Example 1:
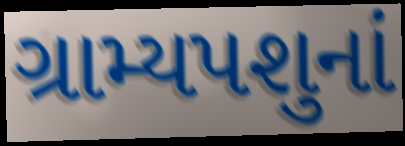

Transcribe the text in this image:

ગ્રામ્યપશુનાં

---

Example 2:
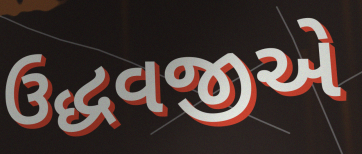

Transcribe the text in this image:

ઉદ્ધવજીએ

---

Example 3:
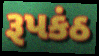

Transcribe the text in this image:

રૂપકંઠ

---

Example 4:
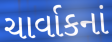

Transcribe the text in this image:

ચાર્વાકનાં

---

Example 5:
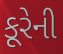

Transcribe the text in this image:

કૂરેની